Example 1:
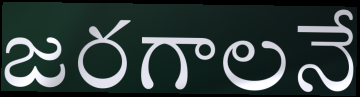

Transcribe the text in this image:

జరగాలనే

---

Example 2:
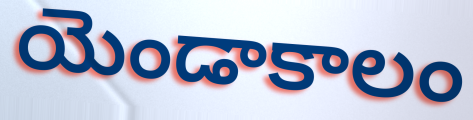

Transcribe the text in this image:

యెండాకాలం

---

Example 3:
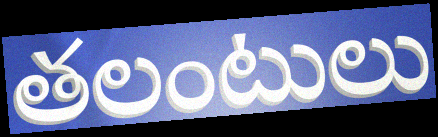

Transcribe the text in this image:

తలంటులు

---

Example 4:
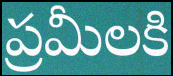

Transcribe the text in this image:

ప్రమీలకి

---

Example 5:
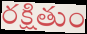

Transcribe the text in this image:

రక్షితుం